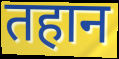
तहान